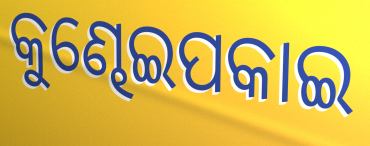
କୁଣ୍ଢେଇପକାଇ